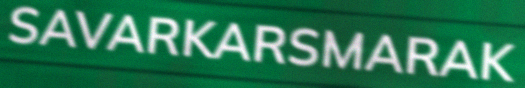
SAVARKARSMARAK